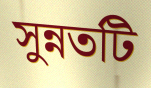
সুন্নতটি